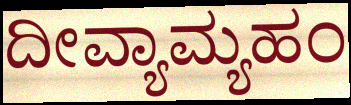
ದೀವ್ಯಾಮ್ಯಹಂ